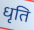
धृति